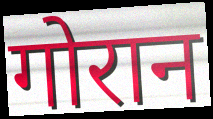
गोरान